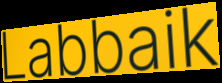
Labbaik